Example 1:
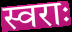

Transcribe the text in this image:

स्वराः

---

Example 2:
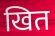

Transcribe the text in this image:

खित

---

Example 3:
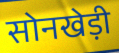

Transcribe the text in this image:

सोनखेड़ी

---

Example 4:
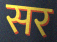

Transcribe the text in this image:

सर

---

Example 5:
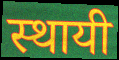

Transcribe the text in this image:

स्थायी